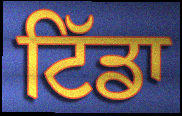
ਟਿੱਡਾ